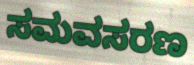
ಸಮವಸರಣ